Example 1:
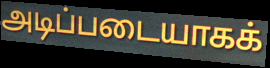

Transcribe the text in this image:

அடிப்படையாகக்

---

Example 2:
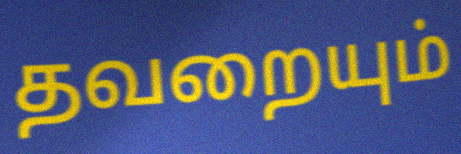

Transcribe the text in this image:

தவறையும்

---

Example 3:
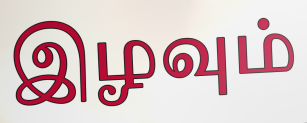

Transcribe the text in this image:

இழவும்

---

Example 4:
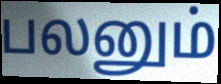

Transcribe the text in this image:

பலனும்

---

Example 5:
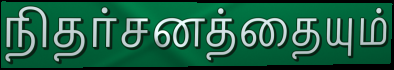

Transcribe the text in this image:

நிதர்சனத்தையும்